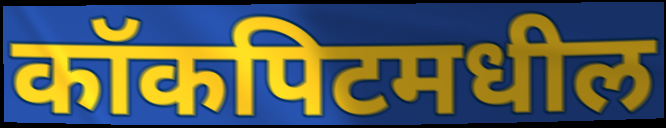
कॉकपिटमधील